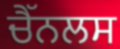
ਚੈੱਨਲਸ